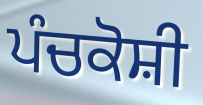
ਪੰਚਕੋਸ਼ੀ